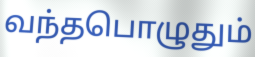
வந்தபொழுதும்